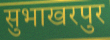
सुभाखरपुर